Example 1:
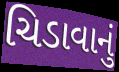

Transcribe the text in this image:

ચિડાવાનું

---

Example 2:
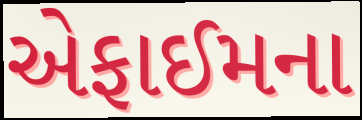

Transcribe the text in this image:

એફાઈમના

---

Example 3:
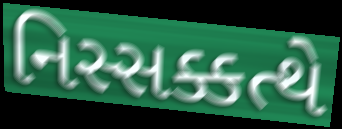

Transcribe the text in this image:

નિસ્સક્કત્થે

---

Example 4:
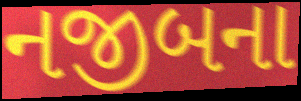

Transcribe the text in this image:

નજીબના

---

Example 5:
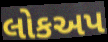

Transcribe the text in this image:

લોકઅપ